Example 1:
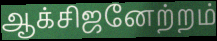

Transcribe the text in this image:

ஆக்சிஜனேற்றம்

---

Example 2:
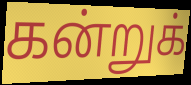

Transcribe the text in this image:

கன்றுக்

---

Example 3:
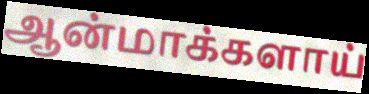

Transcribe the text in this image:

ஆன்மாக்களாய்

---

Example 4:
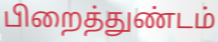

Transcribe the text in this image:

பிறைத்துண்டம்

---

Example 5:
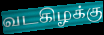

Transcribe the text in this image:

வடகிழக்கு